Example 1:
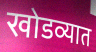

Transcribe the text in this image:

खोडव्यात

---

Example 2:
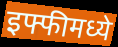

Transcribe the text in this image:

इफ्फीमध्ये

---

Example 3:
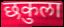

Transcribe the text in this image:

छकुला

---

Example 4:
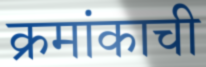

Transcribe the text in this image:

क्रमांकाची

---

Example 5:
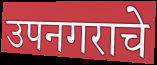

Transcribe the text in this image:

उपनगराचे